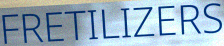
FRETILIZERS